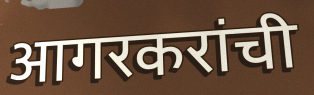
आगरकरांची